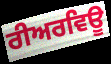
ਰੀਅਰਵਿਊ